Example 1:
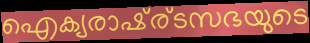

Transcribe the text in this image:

ഐക്യരാഷ്ര്ടസഭയുടെ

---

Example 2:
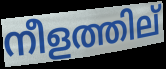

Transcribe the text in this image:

നീളത്തില്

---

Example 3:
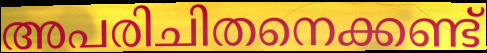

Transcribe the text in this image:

അപരിചിതനെക്കണ്ട്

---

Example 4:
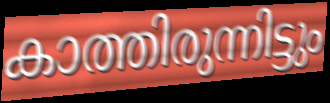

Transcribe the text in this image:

കാത്തിരുന്നിട്ടും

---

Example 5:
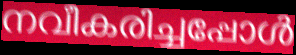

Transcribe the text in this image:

നവീകരിച്ചപ്പോൾ